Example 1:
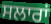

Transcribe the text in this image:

ਸਲਾਰਾਂ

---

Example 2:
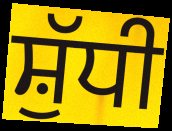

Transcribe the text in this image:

ਸ਼ੁੱਧੀ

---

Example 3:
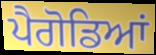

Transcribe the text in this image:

ਪੈਗੋਡਿਆਂ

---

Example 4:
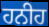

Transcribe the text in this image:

ਹਨੀਹ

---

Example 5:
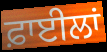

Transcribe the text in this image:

ਫ਼ਾਈਲਾਂ